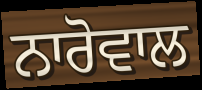
ਨਾਰੋਵਾਲ